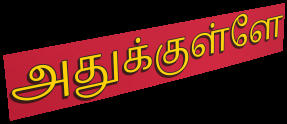
அதுக்குள்ளே